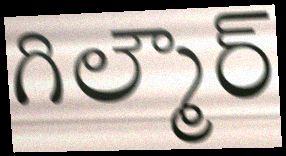
గిల్మౌర్